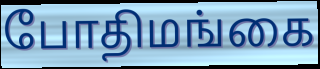
போதிமங்கை